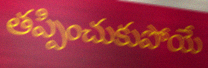
తప్పించుకుపోయే